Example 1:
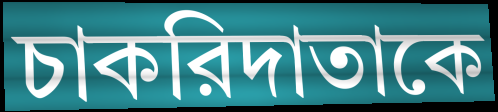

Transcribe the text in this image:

চাকরিদাতাকে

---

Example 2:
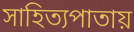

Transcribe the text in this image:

সাহিত্যপাতায়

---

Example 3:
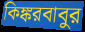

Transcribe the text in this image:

কিঙ্করবাবুর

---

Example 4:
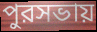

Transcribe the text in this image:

পুরসভায়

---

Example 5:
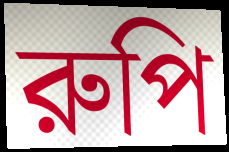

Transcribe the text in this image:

রুপি